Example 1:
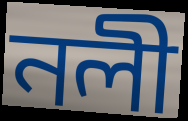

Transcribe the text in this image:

নলী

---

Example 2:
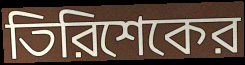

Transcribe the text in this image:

তিরিশেকের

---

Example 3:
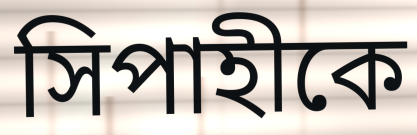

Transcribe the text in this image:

সিপাহীকে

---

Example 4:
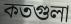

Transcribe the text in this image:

কতগুলা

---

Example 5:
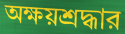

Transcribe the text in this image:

অক্ষয়শ্রদ্ধার